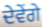
ਦੇਵੇਂਗੇ